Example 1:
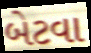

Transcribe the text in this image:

બેટવા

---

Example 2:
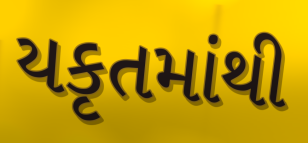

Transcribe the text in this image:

યકૃતમાંથી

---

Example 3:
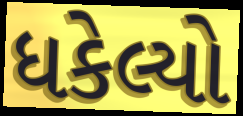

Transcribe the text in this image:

ધકેલ્યો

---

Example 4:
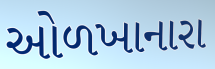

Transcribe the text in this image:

ઓળખાનારા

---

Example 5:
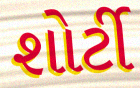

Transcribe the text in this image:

શોર્ટી